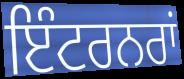
ਇੰਟਰਨਰਾਂ